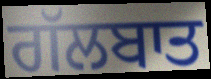
ਗੱਲਬਾਤ